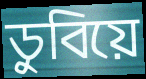
ডুবিয়ে